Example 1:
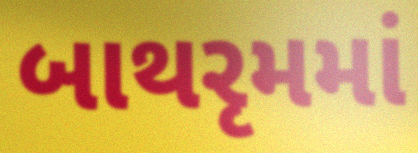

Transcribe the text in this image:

બાથરૃમમાં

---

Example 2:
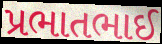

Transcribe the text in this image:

પ્રભાતભાઈ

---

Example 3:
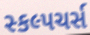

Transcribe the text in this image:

સ્કલ્પચર્સ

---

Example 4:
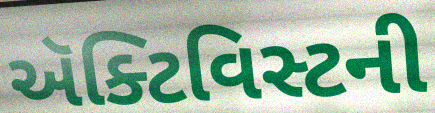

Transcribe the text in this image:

ઍક્ટિવિસ્ટની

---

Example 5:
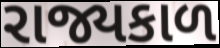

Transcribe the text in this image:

રાજ્યકાળ